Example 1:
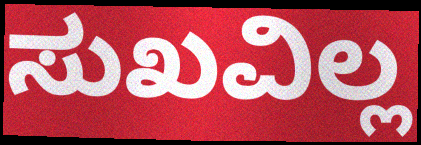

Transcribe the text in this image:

ಸುಖವಿಲ್ಲ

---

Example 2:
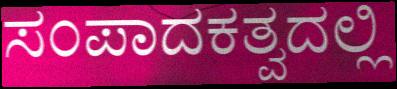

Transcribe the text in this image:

ಸಂಪಾದಕತ್ವದಲ್ಲಿ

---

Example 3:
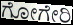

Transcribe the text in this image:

ಗೋಗೇರಿ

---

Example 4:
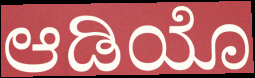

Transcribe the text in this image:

ಆಡಿಯೊ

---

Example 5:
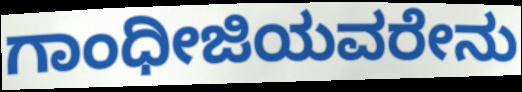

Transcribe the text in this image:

ಗಾಂಧೀಜಿಯವರೇನು